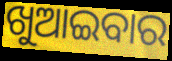
ଖୁଆଇବାର